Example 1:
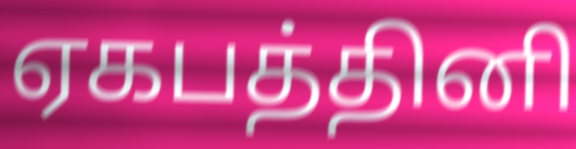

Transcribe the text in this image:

ஏகபத்தினி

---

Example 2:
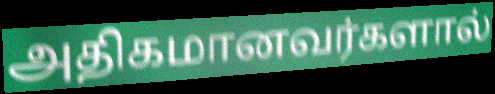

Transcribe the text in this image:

அதிகமானவர்களால்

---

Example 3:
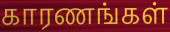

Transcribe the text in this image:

காரணங்கள்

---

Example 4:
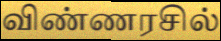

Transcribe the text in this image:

விண்ணரசில்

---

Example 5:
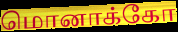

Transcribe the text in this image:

மொனாக்கோ